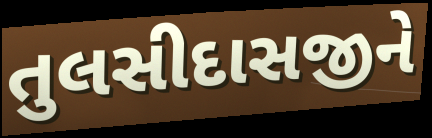
તુલસીદાસજીને